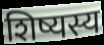
शिष्यस्य